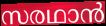
സരഥാൻ